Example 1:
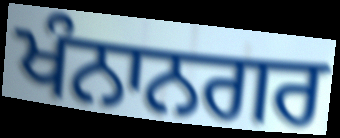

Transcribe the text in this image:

ਖੰਨਾਨਗਰ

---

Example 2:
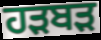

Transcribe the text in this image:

ਹੜਬੜ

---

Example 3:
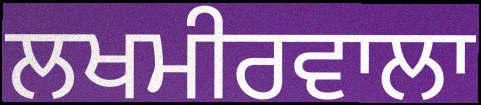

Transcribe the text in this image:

ਲਖਮੀਰਵਾਲਾ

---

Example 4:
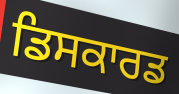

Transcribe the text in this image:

ਡਿਸਕਾਰਡ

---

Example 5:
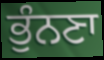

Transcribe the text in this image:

ਭੁੰਨਣਾ